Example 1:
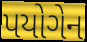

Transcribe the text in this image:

પયોગેન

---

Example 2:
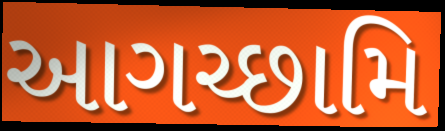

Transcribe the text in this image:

આગચ્છામિ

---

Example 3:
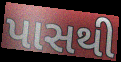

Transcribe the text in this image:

પાસથી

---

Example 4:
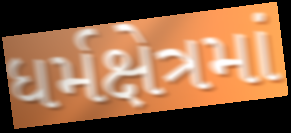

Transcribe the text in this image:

ધર્મક્ષેત્રમાં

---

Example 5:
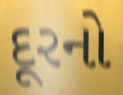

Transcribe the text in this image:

દૂરનો